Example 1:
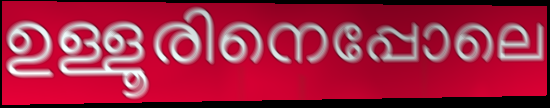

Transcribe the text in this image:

ഉള്ളൂരിനെപ്പോലെ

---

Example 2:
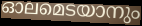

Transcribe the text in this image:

ഓലമെടയാനും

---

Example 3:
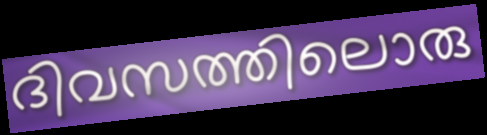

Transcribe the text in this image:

ദിവസത്തിലൊരു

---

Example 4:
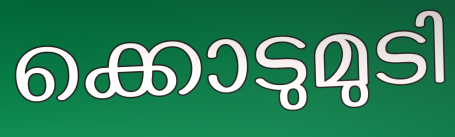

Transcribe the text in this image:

ക്കൊടുമുടി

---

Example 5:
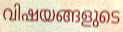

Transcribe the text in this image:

വിഷയങ്ങളുടെ